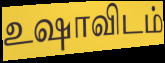
உஷாவிடம்